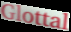
Glottal